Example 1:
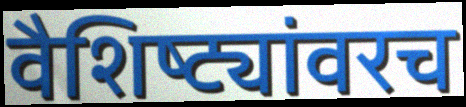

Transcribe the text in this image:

वैशिष्ट्यांवरच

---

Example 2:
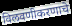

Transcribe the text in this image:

विलवणीकरणाचे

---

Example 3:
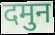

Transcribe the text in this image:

दमुन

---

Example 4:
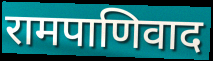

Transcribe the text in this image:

रामपाणिवाद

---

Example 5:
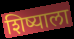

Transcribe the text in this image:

शिष्याला